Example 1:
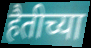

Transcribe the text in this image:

हैतीच्या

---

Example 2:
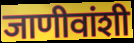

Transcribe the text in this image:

जाणीवांशी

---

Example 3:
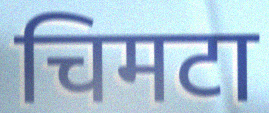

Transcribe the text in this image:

चिमटा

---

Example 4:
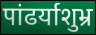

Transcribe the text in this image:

पांढर्याशुभ्र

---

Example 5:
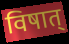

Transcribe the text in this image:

विषात्